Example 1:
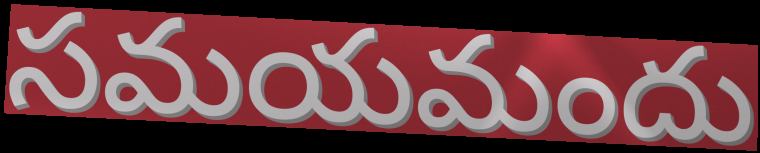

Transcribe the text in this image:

సమయమందు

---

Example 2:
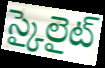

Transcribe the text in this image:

స్కైలైట్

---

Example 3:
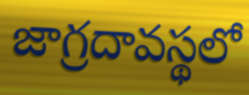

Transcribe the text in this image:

జాగ్రదావస్థలో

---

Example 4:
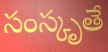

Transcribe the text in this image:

సంస్కృతే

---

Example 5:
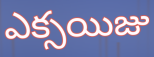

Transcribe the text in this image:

ఎక్సయిజు